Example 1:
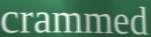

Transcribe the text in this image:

crammed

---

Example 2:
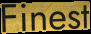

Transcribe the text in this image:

Finest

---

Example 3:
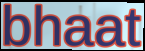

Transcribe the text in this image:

bhaat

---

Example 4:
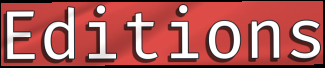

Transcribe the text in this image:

Editions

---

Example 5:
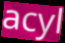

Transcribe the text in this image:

acyl